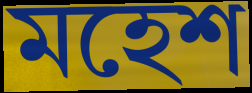
মহেশ